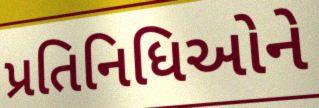
પ્રતિનિધિઓને